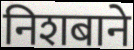
निशबाने